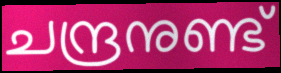
ചന്ദ്രനുണ്ട്